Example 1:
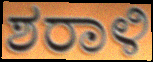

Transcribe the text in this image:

ಶರಾಳಿ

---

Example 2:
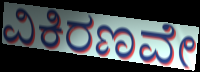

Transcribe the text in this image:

ವಿಕಿರಣವೇ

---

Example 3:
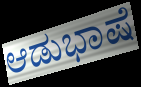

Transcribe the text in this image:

ಆಡುಭಾಷೆ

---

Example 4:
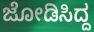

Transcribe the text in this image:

ಜೋಡಿಸಿದ್ದ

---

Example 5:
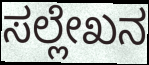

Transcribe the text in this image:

ಸಲ್ಲೇಖನ